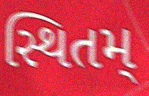
સ્થિતમ્